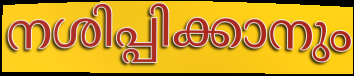
നശിപ്പിക്കാനും